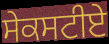
ਸੇਕਸਟੀਏ